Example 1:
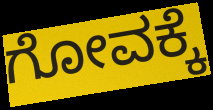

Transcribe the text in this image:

ಗೋವಕ್ಕೆ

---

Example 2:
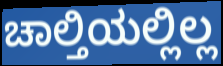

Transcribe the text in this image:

ಚಾಲ್ತಿಯಲ್ಲಿಲ್ಲ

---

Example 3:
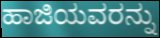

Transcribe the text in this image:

ಹಾಜಿಯವರನ್ನು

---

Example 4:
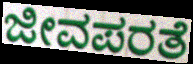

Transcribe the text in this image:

ಜೀವಪರತೆ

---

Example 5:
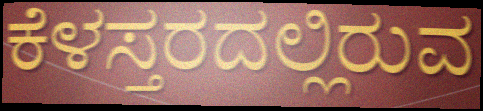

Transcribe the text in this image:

ಕೆಳಸ್ತರದಲ್ಲಿರುವ